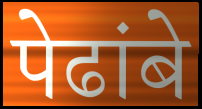
पेढांबे